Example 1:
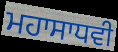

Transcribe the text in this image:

ਮਹਾਸਾਧਵੀ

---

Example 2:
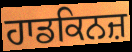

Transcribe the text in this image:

ਹਾਡਕਿਨਜ਼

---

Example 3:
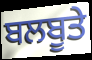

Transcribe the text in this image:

ਬਲਬੂਤੇ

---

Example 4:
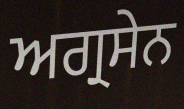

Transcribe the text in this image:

ਅਗ੍ਰਸੇਨ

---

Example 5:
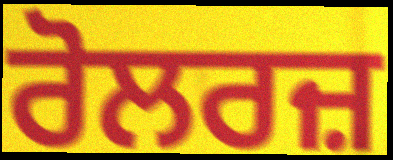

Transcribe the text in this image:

ਰੋਲਰਜ਼